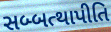
સબ્બત્થાપીતિ